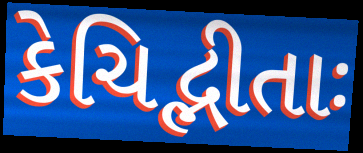
કેચિદ્ભીતાઃ